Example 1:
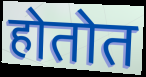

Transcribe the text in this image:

होतोत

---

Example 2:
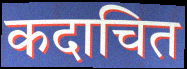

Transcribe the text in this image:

कदाचित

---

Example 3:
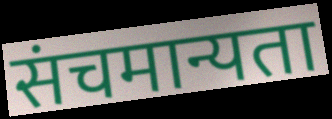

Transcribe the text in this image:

संचमान्यता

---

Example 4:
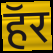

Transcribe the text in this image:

हॅर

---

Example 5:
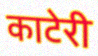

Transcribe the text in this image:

काटेरी